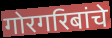
गोरगरिबांचे